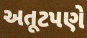
અતૂટપણે